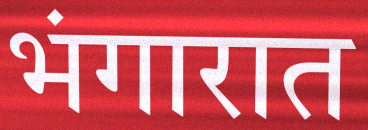
भंगारात